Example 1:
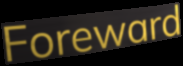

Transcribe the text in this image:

Foreward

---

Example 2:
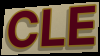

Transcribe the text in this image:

CLE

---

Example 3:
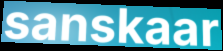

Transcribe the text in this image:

sanskaar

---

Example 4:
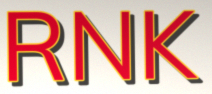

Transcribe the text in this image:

RNK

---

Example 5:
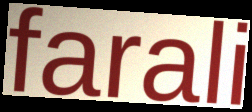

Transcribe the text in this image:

farali